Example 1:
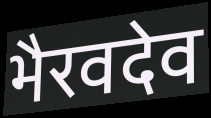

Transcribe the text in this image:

भैरवदेव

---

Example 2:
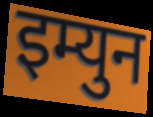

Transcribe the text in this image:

इम्‍युन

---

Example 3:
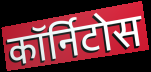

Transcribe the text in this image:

कॉर्निटोस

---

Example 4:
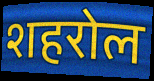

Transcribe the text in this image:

शहरोल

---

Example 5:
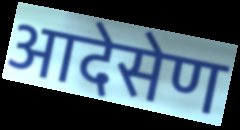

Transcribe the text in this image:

आदेसेण